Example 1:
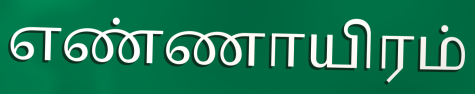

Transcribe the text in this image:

எண்ணாயிரம்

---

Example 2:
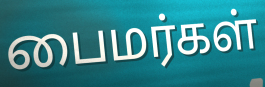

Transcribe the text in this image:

பைமர்கள்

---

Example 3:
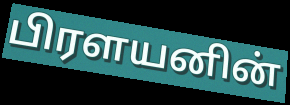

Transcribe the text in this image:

பிரளயனின்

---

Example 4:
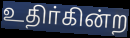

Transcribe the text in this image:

உதிர்கின்ற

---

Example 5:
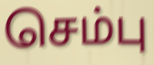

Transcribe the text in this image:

செம்பு